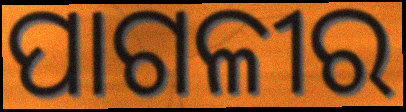
ପାଗଳୀର